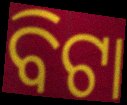
ବିଟା